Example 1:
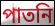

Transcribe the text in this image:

পাতনি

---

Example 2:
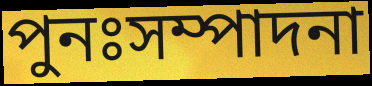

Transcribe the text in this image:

পুনঃসম্পাদনা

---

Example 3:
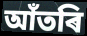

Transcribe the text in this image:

আঁতৰি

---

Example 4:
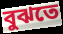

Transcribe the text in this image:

বুঝতে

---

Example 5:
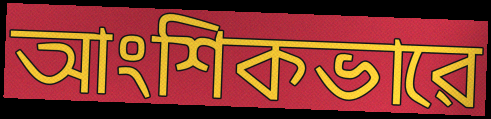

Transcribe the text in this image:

আংশিকভাৱে